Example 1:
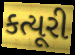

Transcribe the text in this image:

કત્યૂરી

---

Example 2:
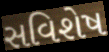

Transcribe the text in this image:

સવિશેષ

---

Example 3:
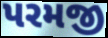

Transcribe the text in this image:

પરમજી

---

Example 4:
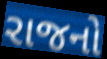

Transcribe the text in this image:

રાજનો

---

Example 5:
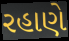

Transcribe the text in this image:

રહાણે